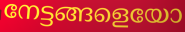
നേട്ടങ്ങളെയോ